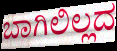
ಬಾಗಿಲಿಲ್ಲದ